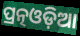
ପ୍ରତ୍ନଓଡ଼ିଆ